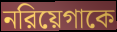
নরিয়েগাকে